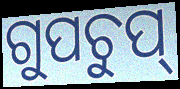
ଗୁପଚୁପ୍